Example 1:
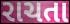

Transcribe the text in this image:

રાચતા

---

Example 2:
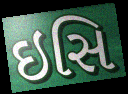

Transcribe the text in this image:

ઇસિ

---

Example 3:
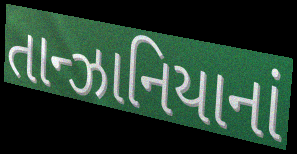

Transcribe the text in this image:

તાન્ઝાનિયાનાં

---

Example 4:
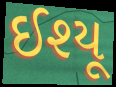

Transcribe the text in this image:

ઈશ્યૂ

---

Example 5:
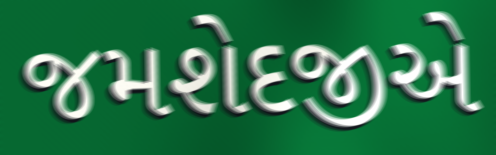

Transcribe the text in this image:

જમશેદજીએ